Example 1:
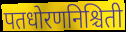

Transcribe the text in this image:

पतधोरणनिश्चिती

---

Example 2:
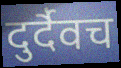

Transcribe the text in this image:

दुर्दैवच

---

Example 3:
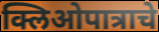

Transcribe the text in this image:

क्लिओपात्राचे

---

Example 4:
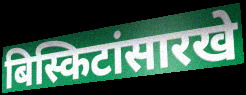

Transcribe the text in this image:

बिस्किटांसारखे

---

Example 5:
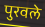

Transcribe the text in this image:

पुरवले